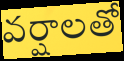
వర్షాలతో